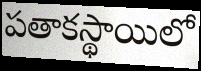
పతాకస్థాయిలో